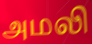
அமலி